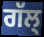
ਗੱਲ੍